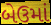
બેઉમાં